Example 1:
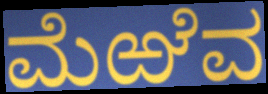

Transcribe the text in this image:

ಮೆಱೆವ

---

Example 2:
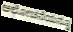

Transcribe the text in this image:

ಆಲೋಚನೆಯನ್ನೂ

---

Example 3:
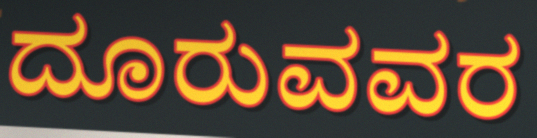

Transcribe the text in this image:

ದೂರುವವರ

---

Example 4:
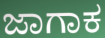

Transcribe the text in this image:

ಜಾಗಾಕ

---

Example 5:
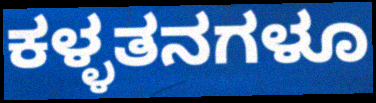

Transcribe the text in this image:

ಕಳ್ಳತನಗಳೂ